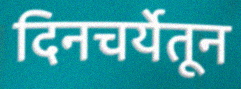
दिनचर्येतून